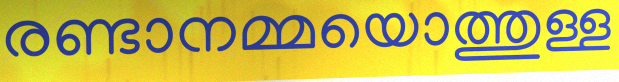
രണ്ടാനമ്മയൊത്തുള്ള